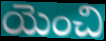
యెంచి